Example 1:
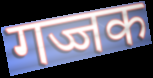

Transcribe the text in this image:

गज्जक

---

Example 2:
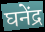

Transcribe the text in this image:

घनेंद्र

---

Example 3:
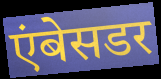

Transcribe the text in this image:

एंबेसडर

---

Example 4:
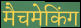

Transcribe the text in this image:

मैचमेकिंग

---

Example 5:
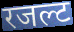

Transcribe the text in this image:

रजल्ट